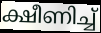
ക്ഷീണിച്ച്